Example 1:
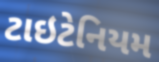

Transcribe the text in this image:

ટાઇટેનિયમ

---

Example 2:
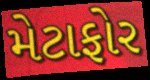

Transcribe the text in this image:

મેટાફોર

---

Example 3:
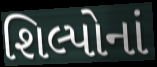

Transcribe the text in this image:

શિલ્પોનાં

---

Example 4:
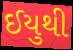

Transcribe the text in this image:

ઈયુથી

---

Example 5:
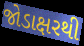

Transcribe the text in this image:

જોડાક્ષરથી